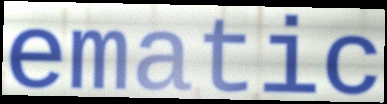
ematic